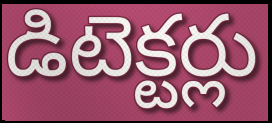
డిటెక్టర్లు